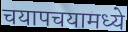
चयापचयामध्ये